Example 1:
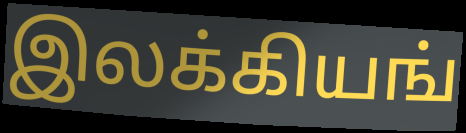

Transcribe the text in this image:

இலக்கியங்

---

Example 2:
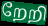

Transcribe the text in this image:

றேறி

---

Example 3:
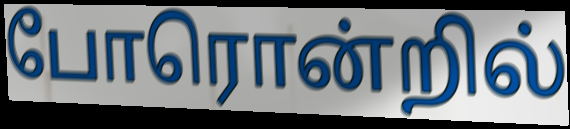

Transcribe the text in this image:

போரொன்றில்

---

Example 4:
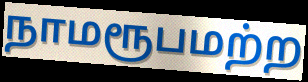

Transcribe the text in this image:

நாமரூபமற்ற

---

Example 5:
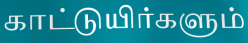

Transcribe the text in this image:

காட்டுயிர்களும்